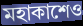
মহাকাশেও